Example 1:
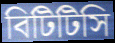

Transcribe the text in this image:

বিটিটিসি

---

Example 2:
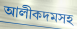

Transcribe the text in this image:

আলীকদমসহ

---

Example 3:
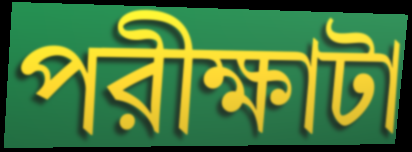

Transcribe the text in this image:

পরীক্ষাটা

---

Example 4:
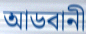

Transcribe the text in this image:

আডবানী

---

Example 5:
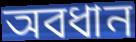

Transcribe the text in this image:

অবধান